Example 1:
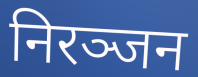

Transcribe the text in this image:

निरञ्जन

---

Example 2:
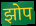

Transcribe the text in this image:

झोप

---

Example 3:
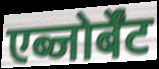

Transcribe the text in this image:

एब्जोर्बेंट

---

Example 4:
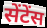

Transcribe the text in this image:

सेंटेंस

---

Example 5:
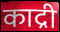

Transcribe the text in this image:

काद्री